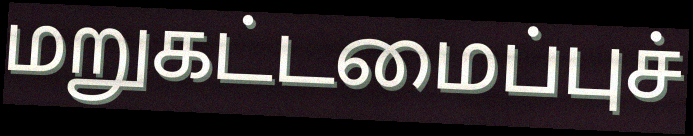
மறுகட்டமைப்புச்